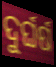
ଦୁର୍ଘର୍ଷ